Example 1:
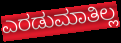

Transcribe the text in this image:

ಎರಡುಮಾತಿಲ್ಲ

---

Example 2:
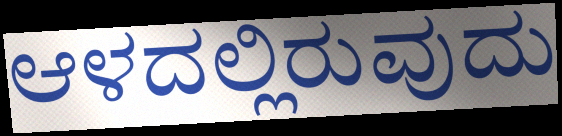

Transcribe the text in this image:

ಆಳದಲ್ಲಿರುವುದು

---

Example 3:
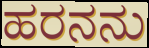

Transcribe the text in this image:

ಹರನನು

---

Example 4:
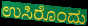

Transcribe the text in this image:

ಉಸಿರೊಂದು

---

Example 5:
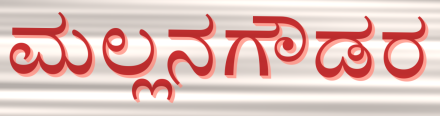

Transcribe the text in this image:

ಮಲ್ಲನಗೌಡರ